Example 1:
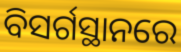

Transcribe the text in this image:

ବିସର୍ଗସ୍ଥାନରେ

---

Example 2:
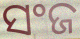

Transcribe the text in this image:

ସଂଜ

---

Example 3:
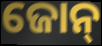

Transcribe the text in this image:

ଜୋନ୍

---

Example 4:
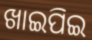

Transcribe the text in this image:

ଖାଇପିଇ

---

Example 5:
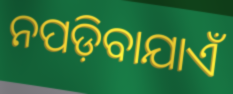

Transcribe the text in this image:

ନପଡ଼ିବାଯାଏଁ